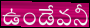
ఉండేవనీ